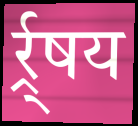
र्र्र्षय